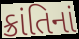
ક્રાંતિનાં